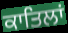
ਕਾਤਿਲਾਂ